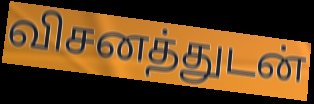
விசனத்துடன்